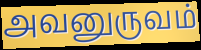
அவனுருவம்